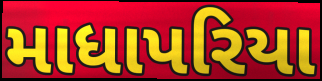
માધાપરિયા